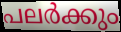
പലർക്കും